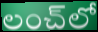
లంచ్‌లో